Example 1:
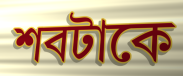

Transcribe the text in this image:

শবটাকে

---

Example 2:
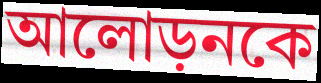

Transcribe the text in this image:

আলোড়নকে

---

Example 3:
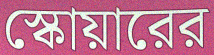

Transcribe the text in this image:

স্কোয়ারের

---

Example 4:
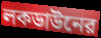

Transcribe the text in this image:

লকডাউনের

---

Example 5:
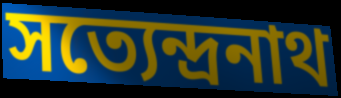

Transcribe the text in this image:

সত্যেন্দ্রনাথ